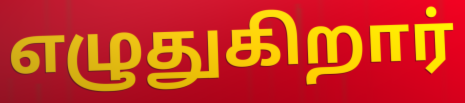
எழுதுகிறார்